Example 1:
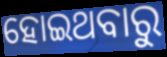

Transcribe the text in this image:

ହୋଇଥବାରୁ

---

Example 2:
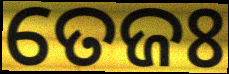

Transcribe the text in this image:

ତେଜଃ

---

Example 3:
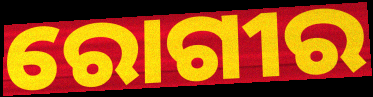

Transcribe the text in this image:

ରୋଗୀର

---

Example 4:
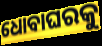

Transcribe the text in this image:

ଧୋବାଘରକୁ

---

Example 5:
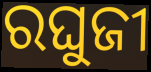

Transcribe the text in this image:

ରଘୁଜୀ